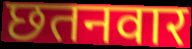
छतनवार